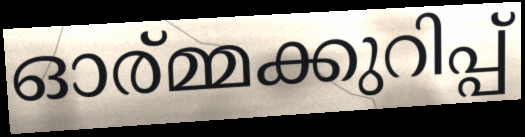
ഓര്മ്മക്കുറിപ്പ്